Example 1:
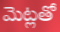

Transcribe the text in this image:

మెట్లతో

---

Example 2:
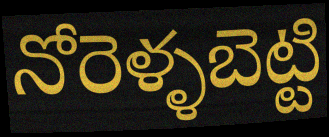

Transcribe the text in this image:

నోరెళ్ళబెట్టి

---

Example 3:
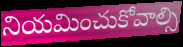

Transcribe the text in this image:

నియమించుకోవాల్సి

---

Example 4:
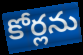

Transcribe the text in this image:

కోర్లను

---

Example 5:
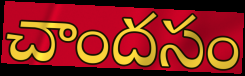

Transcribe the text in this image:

చాందసం